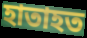
হাতাহত